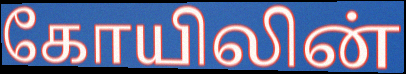
கோயிலின்